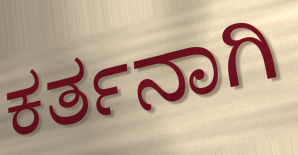
ಕರ್ತನಾಗಿ